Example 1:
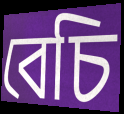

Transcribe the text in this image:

বেচি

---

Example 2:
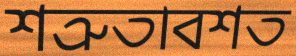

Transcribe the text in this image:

শত্রুতাবশত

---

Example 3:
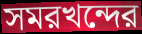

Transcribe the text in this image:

সমরখন্দের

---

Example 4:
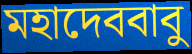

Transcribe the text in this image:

মহাদেববাবু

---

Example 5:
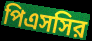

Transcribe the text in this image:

পিএসসির